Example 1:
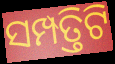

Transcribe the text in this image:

ସମ୍ପତ୍ତିଟି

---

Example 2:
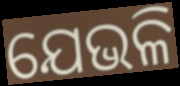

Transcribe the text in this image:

ଯେଭଳି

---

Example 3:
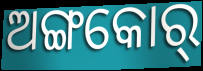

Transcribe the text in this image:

ଅଙ୍ଗକୋର୍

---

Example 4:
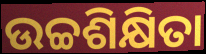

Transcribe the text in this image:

ଉଚ୍ଚଶିକ୍ଷିତା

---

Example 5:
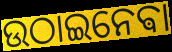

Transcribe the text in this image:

ଉଠାଇନେଵା